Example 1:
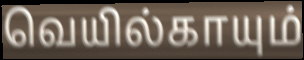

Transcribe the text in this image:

வெயில்காயும்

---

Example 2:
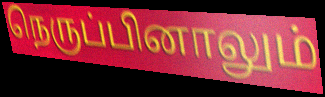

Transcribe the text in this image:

நெருப்பினாலும்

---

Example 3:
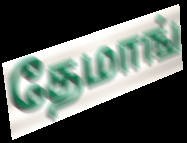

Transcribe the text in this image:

தேமாங்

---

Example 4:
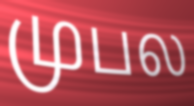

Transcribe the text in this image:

முபல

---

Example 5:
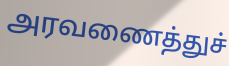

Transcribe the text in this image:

அரவணைத்துச்